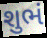
શુભં